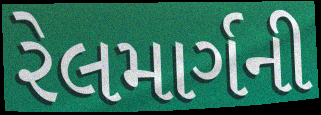
રેલમાર્ગની